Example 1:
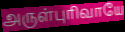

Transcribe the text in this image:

அருள்புரிவாயே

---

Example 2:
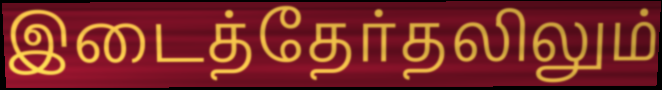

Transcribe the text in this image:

இடைத்தேர்தலிலும்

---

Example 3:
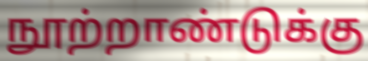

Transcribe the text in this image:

நூற்றாண்டுக்கு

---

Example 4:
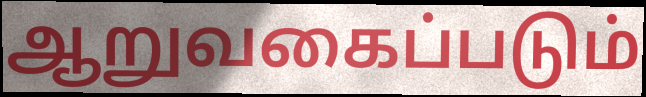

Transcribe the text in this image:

ஆறுவகைப்படும்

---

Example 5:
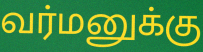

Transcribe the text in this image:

வர்மனுக்கு